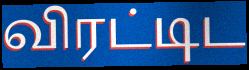
விரட்டிட